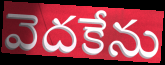
వెదకేను